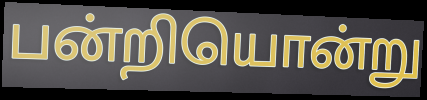
பன்றியொன்று